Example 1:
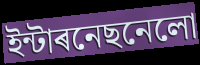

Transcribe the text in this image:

ইন্টাৰনেছনেলো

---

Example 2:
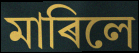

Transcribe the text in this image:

মাৰিলে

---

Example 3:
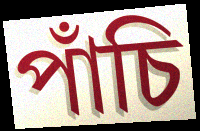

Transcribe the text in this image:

পাঁচি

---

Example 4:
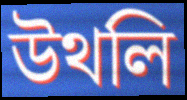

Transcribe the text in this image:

উথলি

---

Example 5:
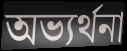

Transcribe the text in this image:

অভ্যৰ্থনা